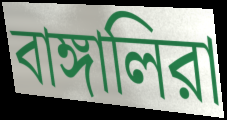
বাঙ্গালিরা